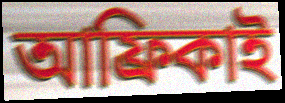
আফ্রিকাই